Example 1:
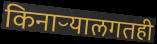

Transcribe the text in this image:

किनाऱ्यालगतही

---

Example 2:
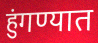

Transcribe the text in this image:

हुंगण्यात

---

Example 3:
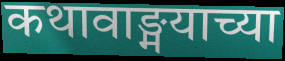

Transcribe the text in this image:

कथावाङ्मयाच्या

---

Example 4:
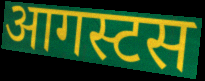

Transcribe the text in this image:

आगस्टस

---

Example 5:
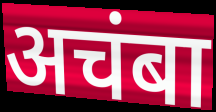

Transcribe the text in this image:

अचंबा